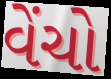
વેંચો